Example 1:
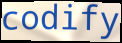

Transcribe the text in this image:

codify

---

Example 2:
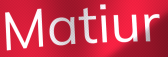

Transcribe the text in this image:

Matiur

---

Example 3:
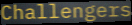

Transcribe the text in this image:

Challengers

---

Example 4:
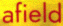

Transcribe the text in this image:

afield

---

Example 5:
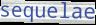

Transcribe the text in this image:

sequelae